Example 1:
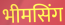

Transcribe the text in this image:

भीमसिंग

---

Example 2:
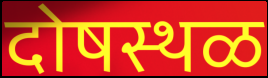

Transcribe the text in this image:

दोषस्थळ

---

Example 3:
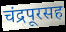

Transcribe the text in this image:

चंद्रपूरसह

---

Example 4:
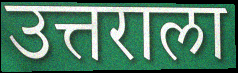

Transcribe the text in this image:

उत्तराला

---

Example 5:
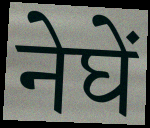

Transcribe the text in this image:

नेघें